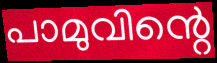
പാമുവിന്റെ